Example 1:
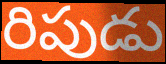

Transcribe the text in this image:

రిపుడు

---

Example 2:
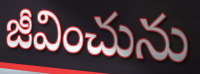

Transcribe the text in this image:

జీవించును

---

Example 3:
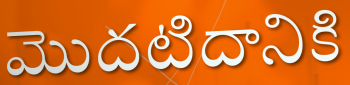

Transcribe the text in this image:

మొదటిదానికి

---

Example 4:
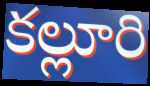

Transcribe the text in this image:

కల్లూరి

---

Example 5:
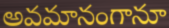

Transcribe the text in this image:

అవమానంగానూ